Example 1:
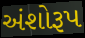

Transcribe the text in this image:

અંશોરૂપ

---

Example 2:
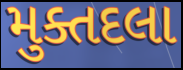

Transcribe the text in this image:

મુક્તદલા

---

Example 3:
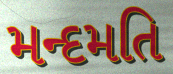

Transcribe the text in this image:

મન્દમતિ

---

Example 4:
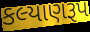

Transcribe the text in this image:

કલ્યાણરૂપ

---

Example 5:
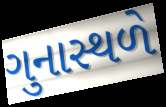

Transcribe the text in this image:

ગુનાસ્થળે